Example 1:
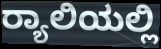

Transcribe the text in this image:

ರ‍್ಯಾಲಿಯಲ್ಲಿ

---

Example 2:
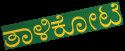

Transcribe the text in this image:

ತಾಳಿಕೋಟೆ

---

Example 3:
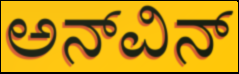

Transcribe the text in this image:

ಅನ್‌ವಿನ್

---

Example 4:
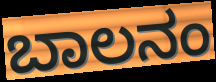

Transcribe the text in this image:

ಬಾಲನಂ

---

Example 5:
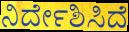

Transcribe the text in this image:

ನಿರ್ದೇಶಿಸಿದೆ